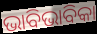
ଭାବିଭାବିକା